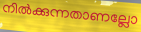
നിൽക്കുന്നതാണല്ലോ